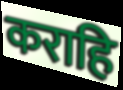
कराहि